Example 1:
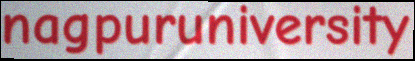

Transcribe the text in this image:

nagpuruniversity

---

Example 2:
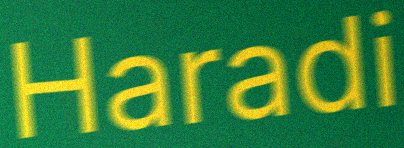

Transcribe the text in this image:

Haradi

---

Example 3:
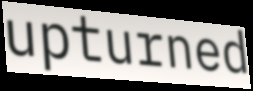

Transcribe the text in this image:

upturned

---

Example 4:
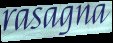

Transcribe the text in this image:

rasagna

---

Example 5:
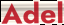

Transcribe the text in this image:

Adel